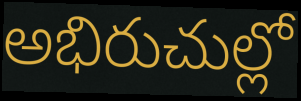
అభిరుచుల్లో